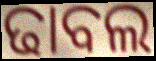
ଢାବଲ